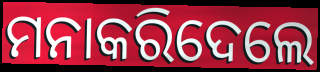
ମନାକରିଦେଲେ